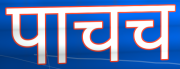
पाचच